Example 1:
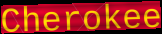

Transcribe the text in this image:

Cherokee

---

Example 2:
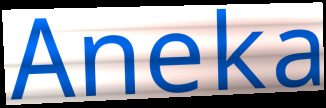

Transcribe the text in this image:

Aneka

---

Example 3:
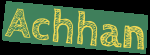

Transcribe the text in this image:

Achhan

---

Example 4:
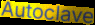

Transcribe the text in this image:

Autoclave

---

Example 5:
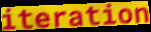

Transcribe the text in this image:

iteration